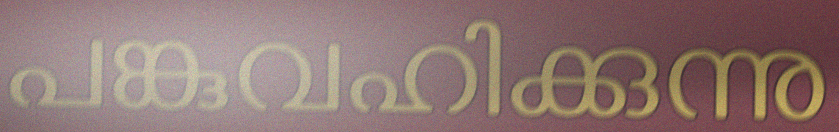
പങ്കുവഹിക്കുന്നു